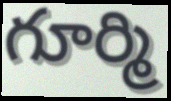
గూర్మి